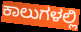
ಕಾಲುಗಳಲ್ಲಿ